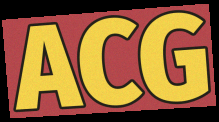
ACG